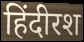
हिंदीरश